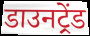
डाउनट्रेंड